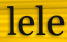
lele